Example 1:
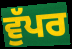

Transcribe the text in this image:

ਵੁੱਪਰ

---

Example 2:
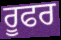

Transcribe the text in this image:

ਰੂਫਰ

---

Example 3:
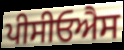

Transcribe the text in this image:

ਪੀਸੀਓਐਸ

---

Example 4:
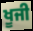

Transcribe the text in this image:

ਖੂਜੀ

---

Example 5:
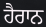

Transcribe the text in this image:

ਹੈਰਾਨ